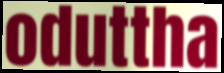
oduttha